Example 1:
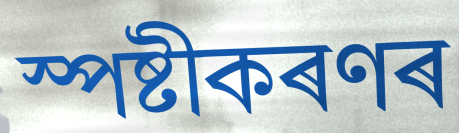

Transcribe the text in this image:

স্পষ্টীকৰণৰ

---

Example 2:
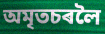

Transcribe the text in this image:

অমৃতচৰলৈ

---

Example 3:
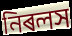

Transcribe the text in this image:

নিৰলস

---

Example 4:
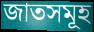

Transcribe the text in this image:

জাতসমূহ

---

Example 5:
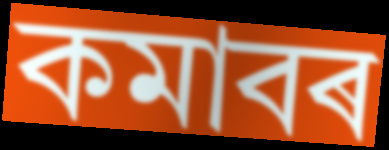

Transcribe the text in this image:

কমাবৰ